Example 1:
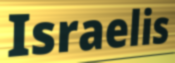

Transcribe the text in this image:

Israelis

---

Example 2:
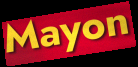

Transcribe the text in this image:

Mayon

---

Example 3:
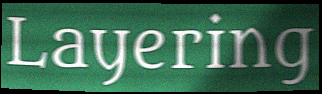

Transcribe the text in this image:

Layering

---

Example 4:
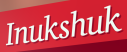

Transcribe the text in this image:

Inukshuk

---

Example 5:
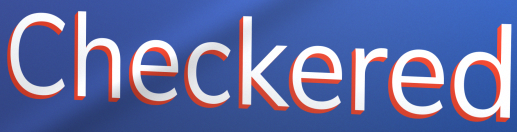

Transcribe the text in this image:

Checkered